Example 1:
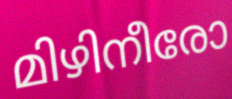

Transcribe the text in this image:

മിഴിനീരോ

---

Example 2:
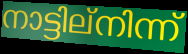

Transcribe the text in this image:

നാട്ടില്നിന്ന്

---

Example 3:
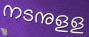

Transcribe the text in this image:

നടനുളള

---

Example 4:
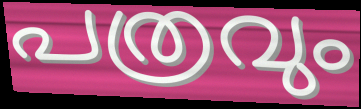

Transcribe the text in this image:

പത്രവും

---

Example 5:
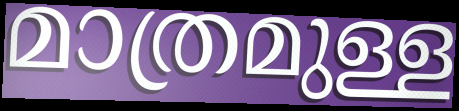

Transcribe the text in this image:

മാത്രമുള്ള